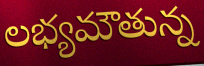
లభ్యమౌతున్న